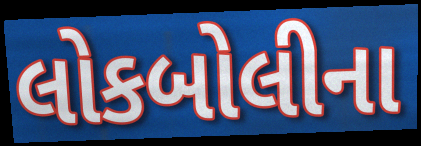
લોકબોલીના